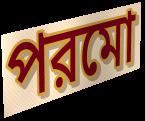
পরমো